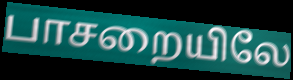
பாசறையிலே